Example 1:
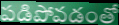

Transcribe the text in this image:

పడిపోవడంతో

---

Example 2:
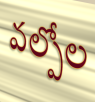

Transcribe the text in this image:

వల్పోల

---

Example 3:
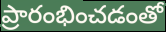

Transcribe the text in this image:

ప్రారంభించడంతో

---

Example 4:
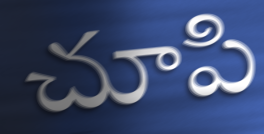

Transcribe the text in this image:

చూపి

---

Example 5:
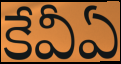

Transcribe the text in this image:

కేవీఏ